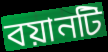
বয়ানটি